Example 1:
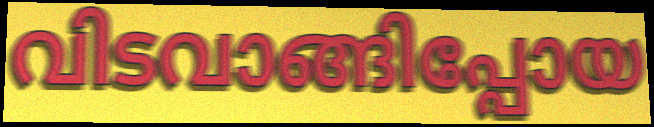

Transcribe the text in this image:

വിടവാങ്ങിപ്പോയ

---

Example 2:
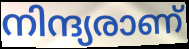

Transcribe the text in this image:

നിന്ദ്യരാണ്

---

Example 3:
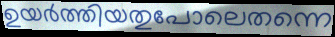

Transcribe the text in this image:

ഉയർത്തിയതുപോലെതന്നെ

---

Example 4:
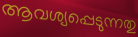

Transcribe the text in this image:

ആവശ്യപ്പെടുന്നതു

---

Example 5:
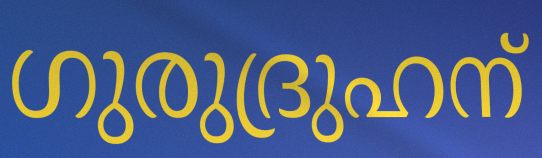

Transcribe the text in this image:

ഗുരുദ്രുഹന്